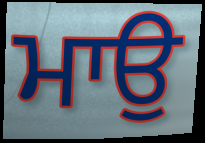
ਮਾਉ